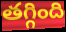
తగ్గింది